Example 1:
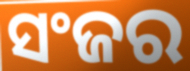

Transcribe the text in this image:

ସଂଜର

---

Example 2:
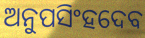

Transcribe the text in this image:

ଅନୁପସିଂହଦେବ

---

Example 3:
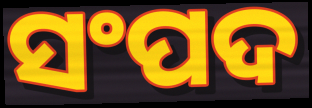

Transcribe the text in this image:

ସଂପଦ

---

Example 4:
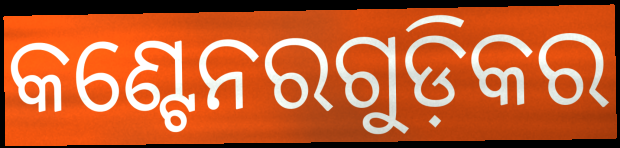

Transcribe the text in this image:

କଣ୍ଟେନରଗୁଡ଼ିକର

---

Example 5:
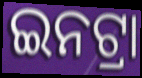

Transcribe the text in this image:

ଇନଟ୍ରା